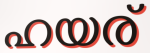
ഹയര്